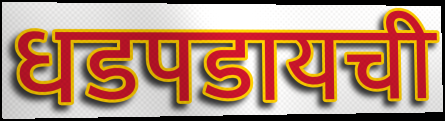
धडपडायची